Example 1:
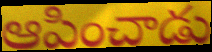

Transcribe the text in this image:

ఆపించాడు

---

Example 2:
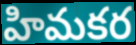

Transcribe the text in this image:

హిమకర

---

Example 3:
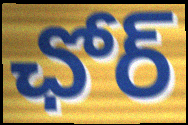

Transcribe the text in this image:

ఛోర్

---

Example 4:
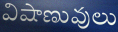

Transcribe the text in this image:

విషాణువులు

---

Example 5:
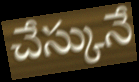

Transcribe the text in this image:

చేస్కునే